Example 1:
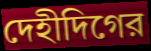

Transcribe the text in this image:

দেহীদিগের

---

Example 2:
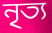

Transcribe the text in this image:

নৃত্য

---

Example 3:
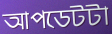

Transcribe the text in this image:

আপডেটটা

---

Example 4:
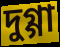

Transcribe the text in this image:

দুগ্গা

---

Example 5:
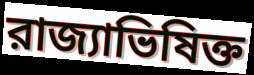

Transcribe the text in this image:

রাজ্যাভিষিক্ত